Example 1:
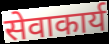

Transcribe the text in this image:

सेवाकार्य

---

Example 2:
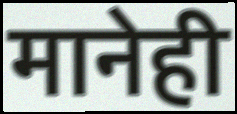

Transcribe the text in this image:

मानेही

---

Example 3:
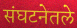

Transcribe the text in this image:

संघटनेतले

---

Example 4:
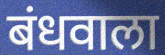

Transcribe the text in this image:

बंधवाला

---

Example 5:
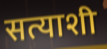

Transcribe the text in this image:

सत्याशी